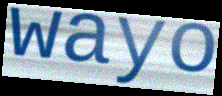
wayo